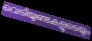
വെടിയുണ്ടകളുടെയും